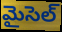
మైసెల్